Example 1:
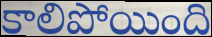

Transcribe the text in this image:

కాలిపోయింది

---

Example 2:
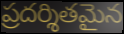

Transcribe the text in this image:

ప్రదర్శితమైన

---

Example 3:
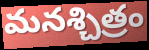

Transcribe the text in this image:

మనశ్చిత్రం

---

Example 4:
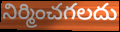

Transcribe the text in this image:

నిర్మించగలదు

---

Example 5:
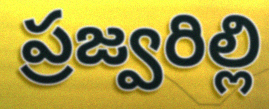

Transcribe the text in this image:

ప్రజ్వరిల్లి